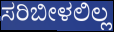
ಸರಿಬೀಳಲಿಲ್ಲ